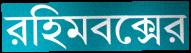
রহিমবক্সের